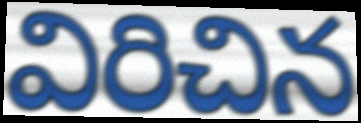
విరిచిన